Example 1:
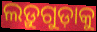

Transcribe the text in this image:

ଲଡ଼ୁଗୁଡ଼ାକୁ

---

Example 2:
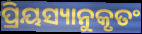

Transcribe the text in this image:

ପ୍ରିୟସ୍ୟାନୁକୃତଂ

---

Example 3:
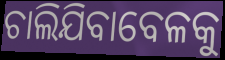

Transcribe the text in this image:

ଚାଲିଯିବାବେଳକୁ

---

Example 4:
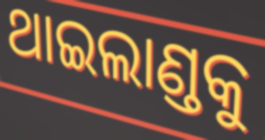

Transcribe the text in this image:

ଥାଇଲାଣ୍ଡକୁ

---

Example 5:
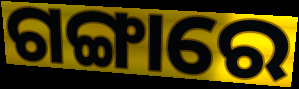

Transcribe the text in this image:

ଗଙ୍ଗାରେ